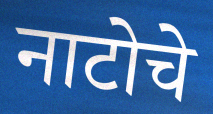
नाटोचे